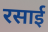
रसाई